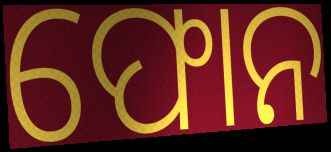
ଫୋନ